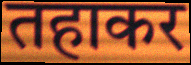
तहाकर